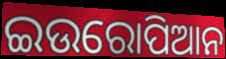
ଇଉରୋପିଆନ